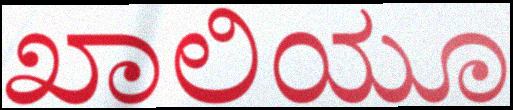
ಖಾಲಿಯೂ